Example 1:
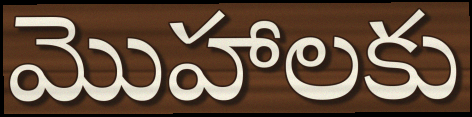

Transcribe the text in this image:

మొహాలకు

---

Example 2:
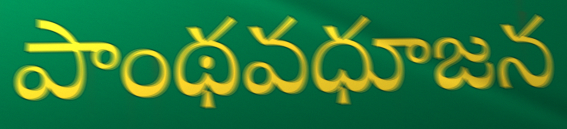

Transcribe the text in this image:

పాంథవధూజన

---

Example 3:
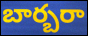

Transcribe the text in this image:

బార్బరా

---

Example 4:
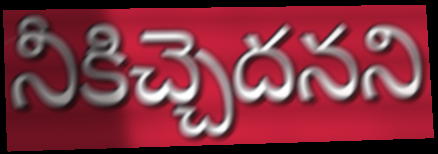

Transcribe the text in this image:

నీకిచ్చెదనని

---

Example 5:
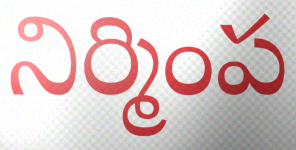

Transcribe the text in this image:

నిర్మింప